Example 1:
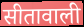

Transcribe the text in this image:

सीतावाली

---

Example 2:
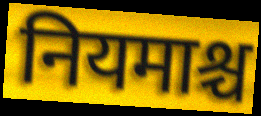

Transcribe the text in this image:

नियमाश्च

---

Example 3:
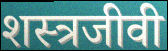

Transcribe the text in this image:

शस्त्रजीवी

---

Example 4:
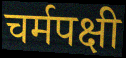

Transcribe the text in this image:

चर्मपक्षी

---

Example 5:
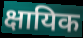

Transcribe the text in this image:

क्षायिक